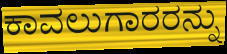
ಕಾವಲುಗಾರರನ್ನು